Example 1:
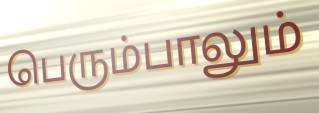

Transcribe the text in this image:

பெரும்பாலும்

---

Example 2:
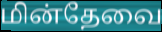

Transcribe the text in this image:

மின்தேவை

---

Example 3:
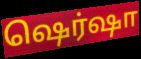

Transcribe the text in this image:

ஷெர்ஷா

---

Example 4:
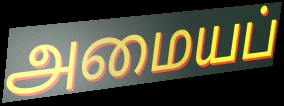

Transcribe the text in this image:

அமையப்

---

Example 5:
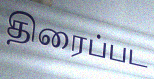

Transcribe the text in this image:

திரைப்பட